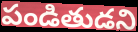
పండితుడని